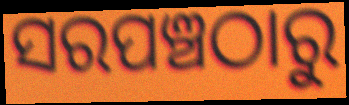
ସରପଞ୍ଚଠାରୁ